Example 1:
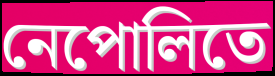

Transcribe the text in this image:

নেপোলিতে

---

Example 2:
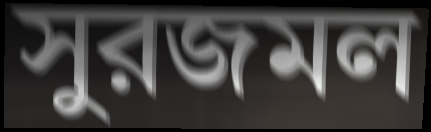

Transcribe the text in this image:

সুরজমল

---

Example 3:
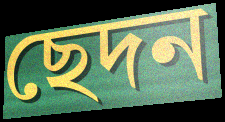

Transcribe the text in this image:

ছেদন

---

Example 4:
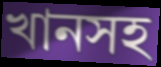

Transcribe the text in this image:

খানসহ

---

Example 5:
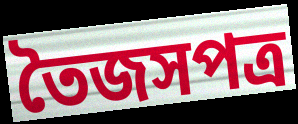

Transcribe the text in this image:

তৈজসপত্র